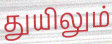
துயிலும்